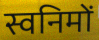
स्वनिमों